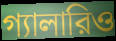
গ্যালারিও